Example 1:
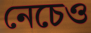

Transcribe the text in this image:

নেচেও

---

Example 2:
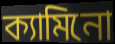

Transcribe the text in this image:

ক্যামিনো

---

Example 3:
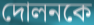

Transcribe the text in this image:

দোলনকে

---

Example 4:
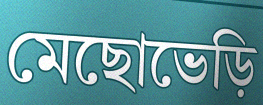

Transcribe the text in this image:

মেছোভেড়ি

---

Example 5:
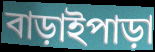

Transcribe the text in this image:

বাড়াইপাড়া